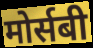
मोर्सबी